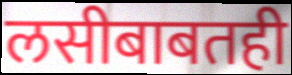
लसीबाबतही